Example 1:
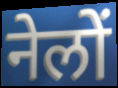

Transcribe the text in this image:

नेलों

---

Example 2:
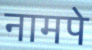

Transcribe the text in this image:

नामपे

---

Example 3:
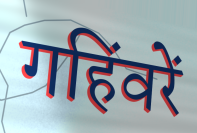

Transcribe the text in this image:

गहिंवरें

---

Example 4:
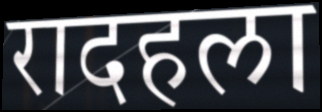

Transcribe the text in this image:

रादहला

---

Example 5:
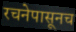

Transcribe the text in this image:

रचनेपासूनच